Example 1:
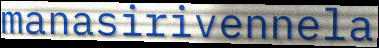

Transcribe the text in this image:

manasirivennela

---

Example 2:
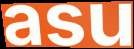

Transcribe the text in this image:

asu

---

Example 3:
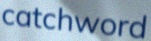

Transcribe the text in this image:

catchword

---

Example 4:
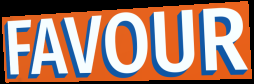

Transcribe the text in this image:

FAVOUR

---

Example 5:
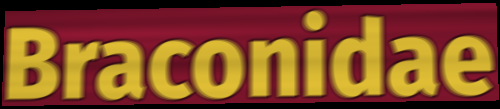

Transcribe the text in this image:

Braconidae